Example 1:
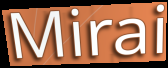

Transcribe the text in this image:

Mirai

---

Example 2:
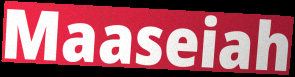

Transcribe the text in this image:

Maaseiah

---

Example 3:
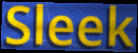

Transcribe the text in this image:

Sleek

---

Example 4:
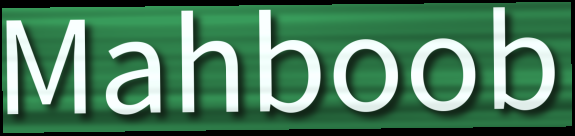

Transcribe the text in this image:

Mahboob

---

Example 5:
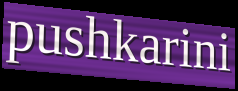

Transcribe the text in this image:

pushkarini